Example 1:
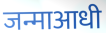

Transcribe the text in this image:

जन्माआधी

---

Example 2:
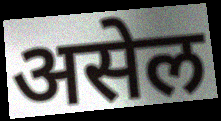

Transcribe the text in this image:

असेल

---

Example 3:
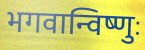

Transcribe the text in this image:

भगवान्विष्णुः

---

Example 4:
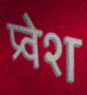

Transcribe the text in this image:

प्र्वेश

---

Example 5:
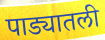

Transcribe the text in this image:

पाड्यातली